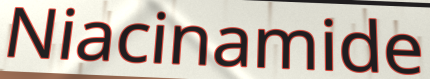
Niacinamide